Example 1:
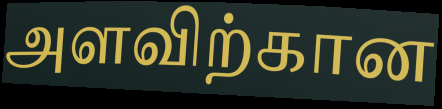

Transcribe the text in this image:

அளவிற்கான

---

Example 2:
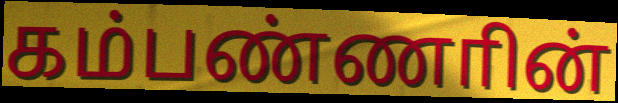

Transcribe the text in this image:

கம்பண்ணரின்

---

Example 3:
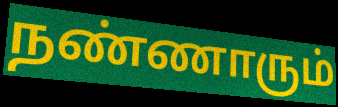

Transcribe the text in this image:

நண்ணாரும்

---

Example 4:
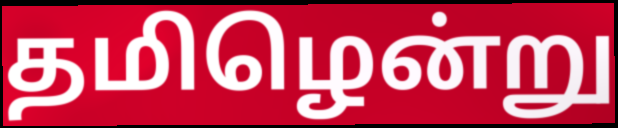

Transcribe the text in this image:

தமிழென்று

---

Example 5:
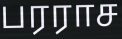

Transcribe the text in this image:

பரராச